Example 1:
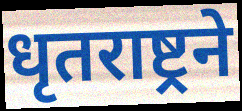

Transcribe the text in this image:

धृतराष्ट्रने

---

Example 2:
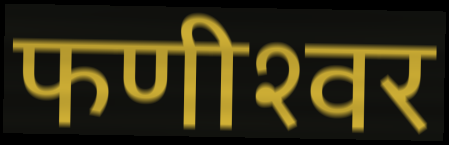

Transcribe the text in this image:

फणीश्वर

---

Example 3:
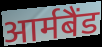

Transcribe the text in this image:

आर्मबैंड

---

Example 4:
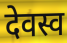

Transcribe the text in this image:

देवस्व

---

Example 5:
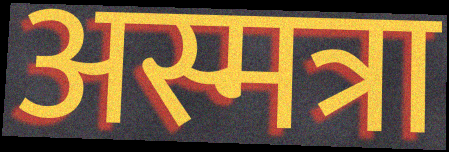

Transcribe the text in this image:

अस्मत्रा